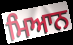
ਮਿਆਨ